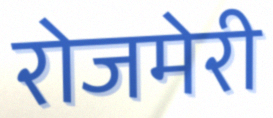
रोजमेरी